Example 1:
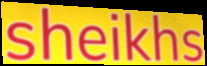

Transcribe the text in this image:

sheikhs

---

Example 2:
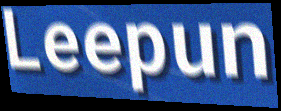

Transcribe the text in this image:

Leepun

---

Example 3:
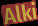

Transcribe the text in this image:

Alki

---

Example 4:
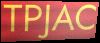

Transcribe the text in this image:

TPJAC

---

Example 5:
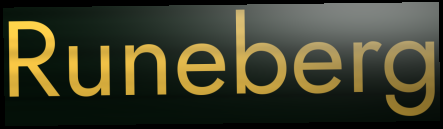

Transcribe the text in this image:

Runeberg